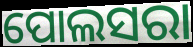
ପୋଲସରା